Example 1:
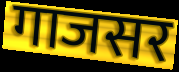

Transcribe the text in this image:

गाजसर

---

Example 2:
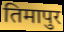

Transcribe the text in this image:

तिमापुर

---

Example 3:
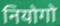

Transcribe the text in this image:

नियोगो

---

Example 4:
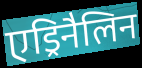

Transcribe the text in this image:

एड्रिनैलिन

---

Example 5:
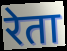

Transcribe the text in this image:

रेता